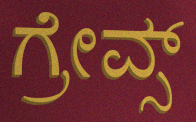
ಗ್ರೇವ್ಸ್